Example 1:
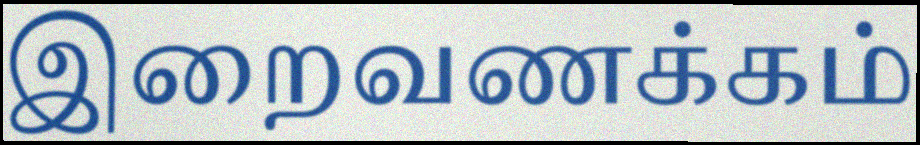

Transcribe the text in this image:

இறைவணக்கம்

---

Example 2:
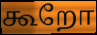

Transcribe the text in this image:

கூறோ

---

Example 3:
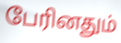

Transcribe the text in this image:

பேரினதும்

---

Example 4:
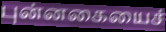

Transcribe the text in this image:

புன்னகையைச்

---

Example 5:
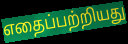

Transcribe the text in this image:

எதைப்பற்றியது